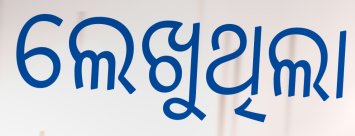
ଲେଖୁଥିଲା